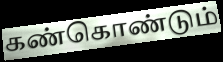
கண்கொண்டும்